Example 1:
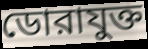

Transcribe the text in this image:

ডোরাযুক্ত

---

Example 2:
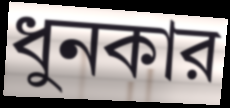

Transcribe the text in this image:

ধুনকার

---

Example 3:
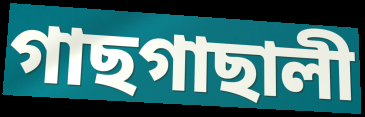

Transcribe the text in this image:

গাছগাছালী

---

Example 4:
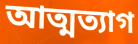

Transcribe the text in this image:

আত্মত্যাগ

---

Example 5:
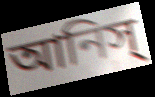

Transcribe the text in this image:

আনিস্